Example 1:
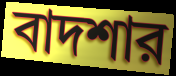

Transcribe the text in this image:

বাদশার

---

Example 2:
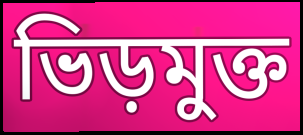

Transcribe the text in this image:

ভিড়মুক্ত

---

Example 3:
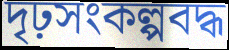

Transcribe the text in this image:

দৃঢ়সংকল্পবদ্ধ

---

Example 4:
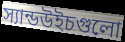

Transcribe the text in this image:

স্যান্ডউইচগুলো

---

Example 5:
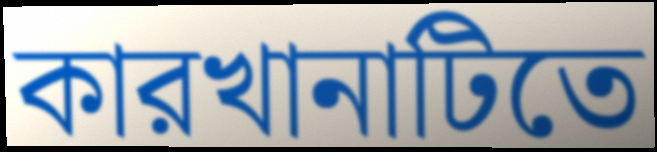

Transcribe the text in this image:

কারখানাটিতে